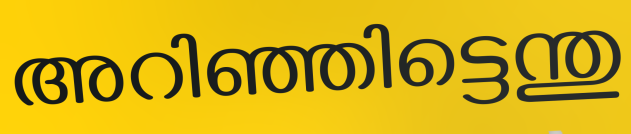
അറിഞ്ഞിട്ടെന്തു